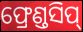
ଫ୍ରେଣ୍ଡସିପ୍